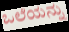
ಒಲೆಯನ್ನು